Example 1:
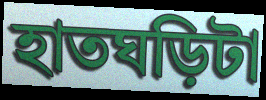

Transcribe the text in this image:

হাতঘড়িটা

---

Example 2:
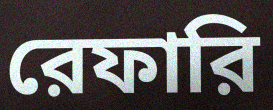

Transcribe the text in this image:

রেফারি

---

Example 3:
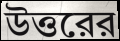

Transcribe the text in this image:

উত্তরের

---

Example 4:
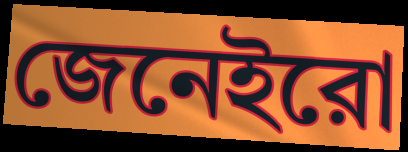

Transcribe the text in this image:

জেনেইরো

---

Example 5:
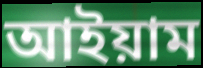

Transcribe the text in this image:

আইয়াম